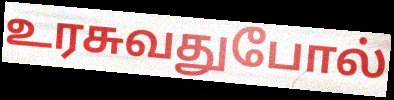
உரசுவதுபோல்